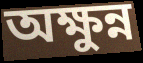
অক্ষুন্ন